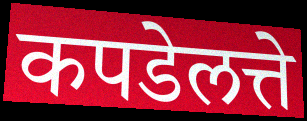
कपडेलत्ते